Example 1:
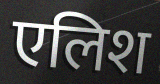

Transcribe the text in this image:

एलिश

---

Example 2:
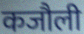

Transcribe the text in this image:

कजौली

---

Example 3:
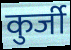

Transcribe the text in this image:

कुर्जी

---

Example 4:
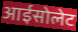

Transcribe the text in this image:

आईसोलेट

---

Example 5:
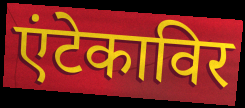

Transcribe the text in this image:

एंटेकाविर